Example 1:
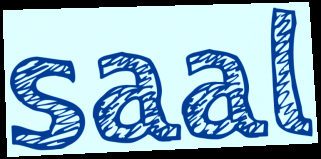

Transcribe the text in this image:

saal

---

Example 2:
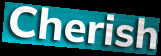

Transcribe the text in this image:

Cherish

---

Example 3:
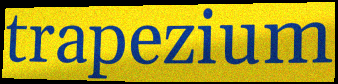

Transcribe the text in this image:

trapezium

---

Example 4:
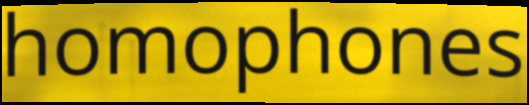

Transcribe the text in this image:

homophones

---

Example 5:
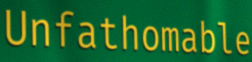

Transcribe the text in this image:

Unfathomable